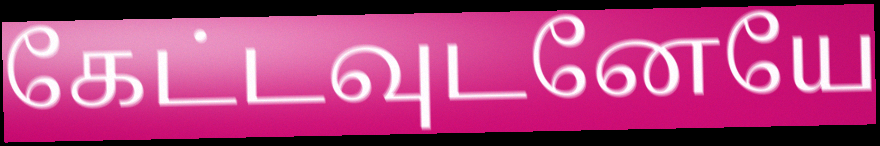
கேட்டவுடனேயே